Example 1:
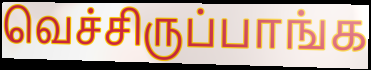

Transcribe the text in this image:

வெச்சிருப்பாங்க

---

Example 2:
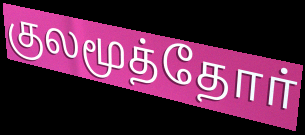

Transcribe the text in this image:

குலமூத்தோர்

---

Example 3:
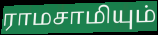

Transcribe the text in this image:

ராமசாமியும்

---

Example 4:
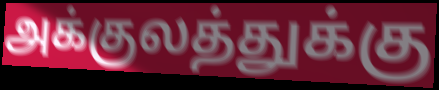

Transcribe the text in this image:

அக்குலத்துக்கு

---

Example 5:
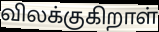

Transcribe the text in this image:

விலக்குகிறாள்